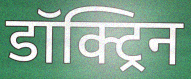
डॉक्ट्रिन